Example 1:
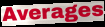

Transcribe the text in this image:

Averages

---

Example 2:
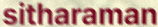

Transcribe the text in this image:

sitharaman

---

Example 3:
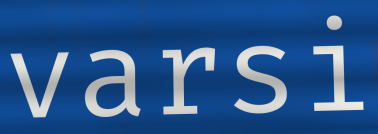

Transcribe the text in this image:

varsi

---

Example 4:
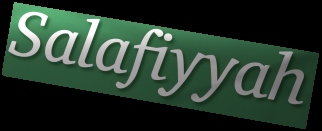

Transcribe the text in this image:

Salafiyyah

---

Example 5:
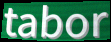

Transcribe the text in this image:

tabor